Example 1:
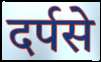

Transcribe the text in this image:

दर्पसे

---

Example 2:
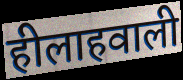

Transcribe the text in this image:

हीलाहवाली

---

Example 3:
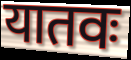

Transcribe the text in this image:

यातवः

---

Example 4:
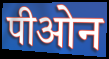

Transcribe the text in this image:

पीओन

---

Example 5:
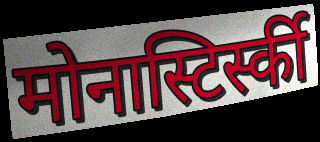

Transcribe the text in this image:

मोनास्टिर्स्की